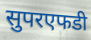
सुपरएफडी